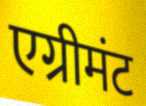
एग्रीमंट